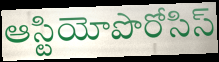
ఆస్టియోపొరోసిస్